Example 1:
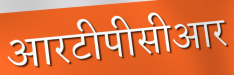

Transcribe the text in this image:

आरटीपीसीआर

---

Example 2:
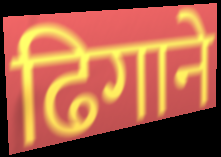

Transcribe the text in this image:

ढिगाने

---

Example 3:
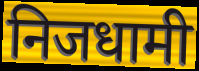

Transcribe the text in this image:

निजधामी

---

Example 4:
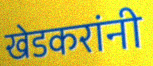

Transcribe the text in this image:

खेडकरांनी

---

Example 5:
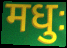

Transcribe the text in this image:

मधुः